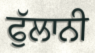
ਫੁੱਲਾਨੀ